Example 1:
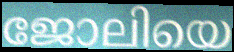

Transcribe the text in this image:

ജോലിയെ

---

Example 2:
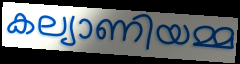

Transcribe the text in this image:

കല്യാണിയമ്മ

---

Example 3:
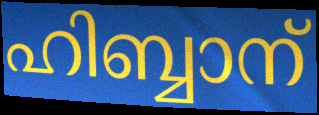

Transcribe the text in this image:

ഹിബ്ബാന്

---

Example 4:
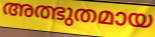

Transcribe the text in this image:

അത്ഭുതമായ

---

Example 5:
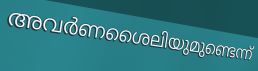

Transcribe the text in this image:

അവർണശൈലിയുമുണ്ടെന്ന്